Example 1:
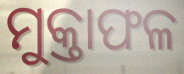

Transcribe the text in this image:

ମୁକ୍ତାଫଳ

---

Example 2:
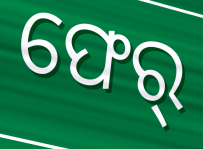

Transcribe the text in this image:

ଫେର୍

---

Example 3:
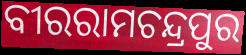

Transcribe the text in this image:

ବୀରରାମଚନ୍ଦ୍ରପୁର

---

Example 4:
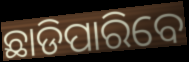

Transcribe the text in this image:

ଛାଡିପାରିବେ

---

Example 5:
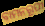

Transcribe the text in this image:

ବାମନରୂପୀ